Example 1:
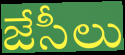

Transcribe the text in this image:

జేసీలు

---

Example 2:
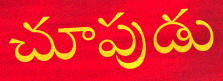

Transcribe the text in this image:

చూపుడు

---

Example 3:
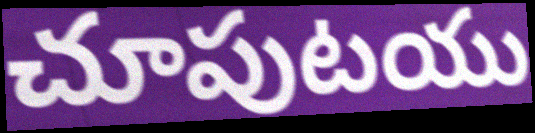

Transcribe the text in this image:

చూపుటయు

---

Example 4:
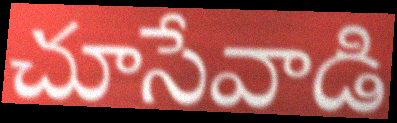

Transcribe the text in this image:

చూసేవాడి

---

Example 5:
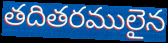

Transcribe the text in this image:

తదితరములైన